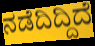
ನಡೆದಿದ್ದಿದೆ